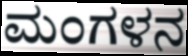
ಮಂಗಳನ